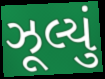
ઝૂલ્યું